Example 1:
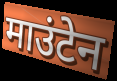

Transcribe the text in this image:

माउंटेन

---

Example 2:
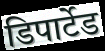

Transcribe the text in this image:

डिपार्टेड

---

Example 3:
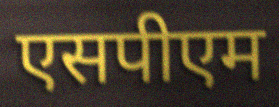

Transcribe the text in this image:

एसपीएम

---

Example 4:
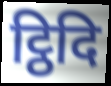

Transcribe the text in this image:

ट्ठिदि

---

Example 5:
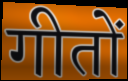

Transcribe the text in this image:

गीतों